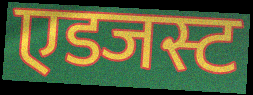
एडजस्ट